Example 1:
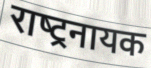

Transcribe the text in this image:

राष्ट्रनायक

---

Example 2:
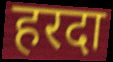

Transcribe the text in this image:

हरदा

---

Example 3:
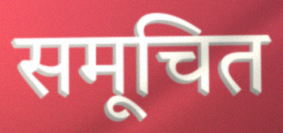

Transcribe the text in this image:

समूचित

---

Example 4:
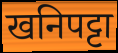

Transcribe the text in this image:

खनिपट्टा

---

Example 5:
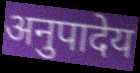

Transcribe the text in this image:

अनुपादेय